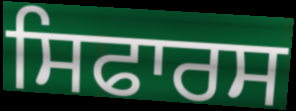
ਸਿਫਾਰਸ